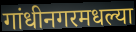
गांधीनगरमधल्या